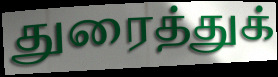
துரைத்துக்